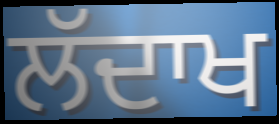
ਲੱਦਾਖ